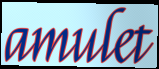
amulet